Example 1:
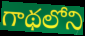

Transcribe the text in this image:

గాథలోని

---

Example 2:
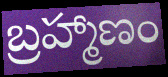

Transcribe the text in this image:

బ్రహ్మాణం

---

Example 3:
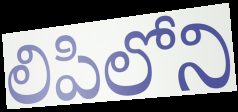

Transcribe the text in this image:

లిపిలోని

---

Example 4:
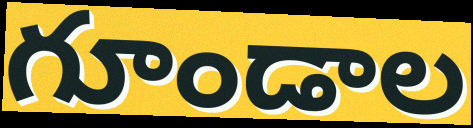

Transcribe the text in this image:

గూండాల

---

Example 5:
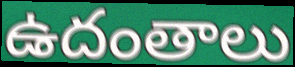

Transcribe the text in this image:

ఉదంతాలు